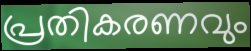
പ്രതികരണവും